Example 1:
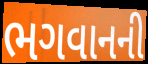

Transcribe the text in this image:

ભગવાનની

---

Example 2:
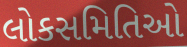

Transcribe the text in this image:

લોકસમિતિઓ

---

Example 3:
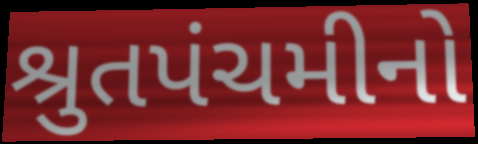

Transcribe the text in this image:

શ્રુતપંચમીનો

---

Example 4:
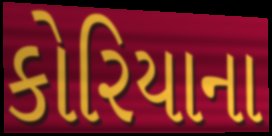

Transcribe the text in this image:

કોરિયાના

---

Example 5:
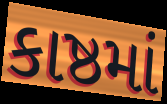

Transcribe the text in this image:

કાષ્ઠમાં